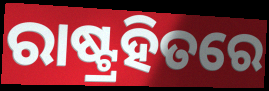
ରାଷ୍ଟ୍ରହିତରେ